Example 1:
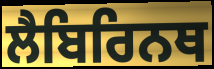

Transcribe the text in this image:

ਲੈਬਿਰਿਨਥ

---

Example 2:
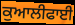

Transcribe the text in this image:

ਕੁਆਲੀਫਾਈ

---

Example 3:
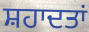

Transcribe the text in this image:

ਸ਼ਹਾਦਤਾਂ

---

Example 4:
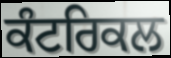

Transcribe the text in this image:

ਕੰਟਰਿਕਲ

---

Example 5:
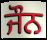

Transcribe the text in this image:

ਜੌਨ